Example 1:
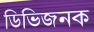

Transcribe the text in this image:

ডিভিজনক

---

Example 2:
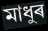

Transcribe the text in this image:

মাধুৰ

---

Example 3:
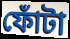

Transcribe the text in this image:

ফোঁটা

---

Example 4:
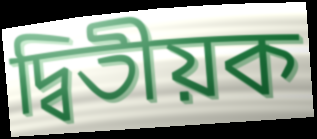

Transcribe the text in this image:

দ্বিতীয়ক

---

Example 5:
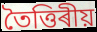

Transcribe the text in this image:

তৈত্তিৰীয়